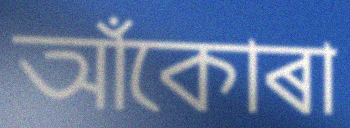
আঁকোৰা